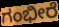
ಗಂಭೀರೆ